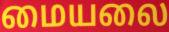
மையலை